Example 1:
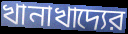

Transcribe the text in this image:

খানাখাদ্যের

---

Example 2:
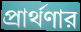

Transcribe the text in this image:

প্রার্থণার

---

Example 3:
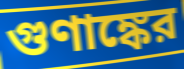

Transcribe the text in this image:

গুণাঙ্কের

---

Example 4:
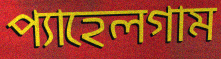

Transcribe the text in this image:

প্যাহেলগাম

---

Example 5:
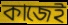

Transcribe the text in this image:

কাজেই